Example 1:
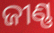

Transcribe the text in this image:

ଜୀଣ୍ଣ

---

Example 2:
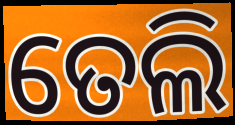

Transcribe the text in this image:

ତେଲି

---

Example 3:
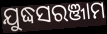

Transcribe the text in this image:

ଯୁଦ୍ଧସରଞ୍ଜାମ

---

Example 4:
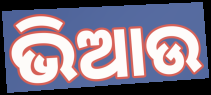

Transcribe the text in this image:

ଭିଆଉ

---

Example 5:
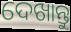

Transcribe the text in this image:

ଦେଖାନ୍ତୁ